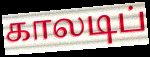
காலடிப்